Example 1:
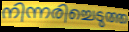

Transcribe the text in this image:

നിന്നരിച്ചെടുത്ത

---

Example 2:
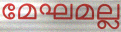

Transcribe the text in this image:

മേഘമല്ല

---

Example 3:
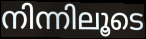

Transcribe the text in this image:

നിന്നിലൂടെ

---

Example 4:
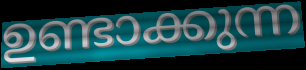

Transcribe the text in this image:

ഉണ്ടാക്കുന്ന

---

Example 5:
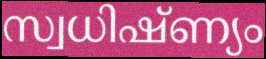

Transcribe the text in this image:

സ്വധിഷ്ണ്യം